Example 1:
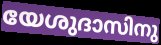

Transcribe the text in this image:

യേശുദാസിനു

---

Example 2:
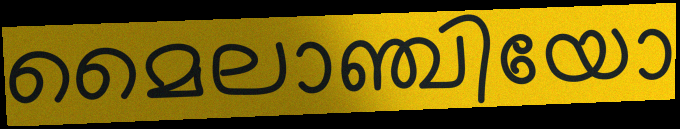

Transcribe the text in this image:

മൈലാഞ്ചിയോ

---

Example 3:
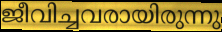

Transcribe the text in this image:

ജീവിച്ചവരായിരുന്നു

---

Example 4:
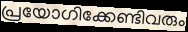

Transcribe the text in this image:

പ്രയോഗിക്കേണ്ടിവരും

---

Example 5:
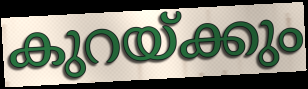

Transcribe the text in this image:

കുറയ്ക്കും